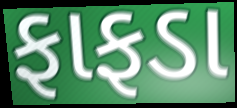
ફાફડા